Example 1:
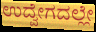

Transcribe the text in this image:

ಉದ್ವೇಗದಲ್ಲೇ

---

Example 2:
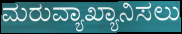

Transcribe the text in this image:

ಮರುವ್ಯಾಖ್ಯಾನಿಸಲು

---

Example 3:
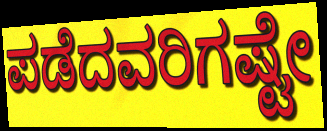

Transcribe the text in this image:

ಪಡೆದವರಿಗಷ್ಟೇ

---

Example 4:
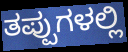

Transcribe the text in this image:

ತಪ್ಪುಗಳಲ್ಲಿ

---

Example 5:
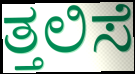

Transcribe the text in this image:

ತ್ತಲಿಸೆ